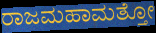
ರಾಜಮಹಾಮತ್ತೋ